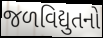
જળવિદ્યુતનો